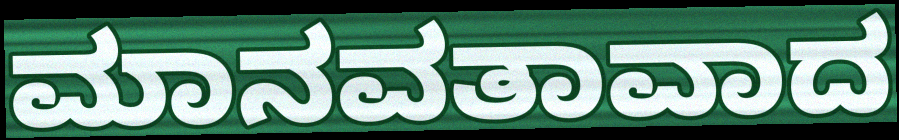
ಮಾನವತಾವಾದ